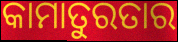
କାମାତୁରତାର